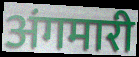
अंगमारी